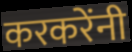
करकरेंनी